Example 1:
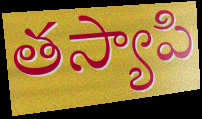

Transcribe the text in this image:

తస్యాపి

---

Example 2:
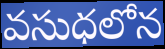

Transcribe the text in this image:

వసుధలోన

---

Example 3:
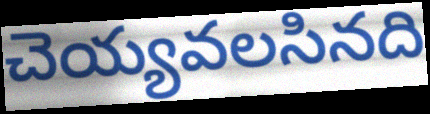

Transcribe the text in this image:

చెయ్యవలసినది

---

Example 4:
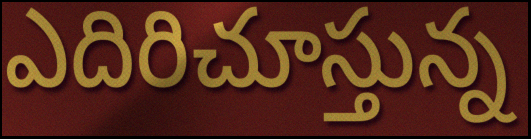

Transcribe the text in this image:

ఎదిరిచూస్తున్న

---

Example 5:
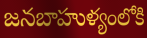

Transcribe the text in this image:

జనబాహుళ్యంలోకి